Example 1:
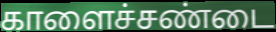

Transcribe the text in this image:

காளைச்சண்டை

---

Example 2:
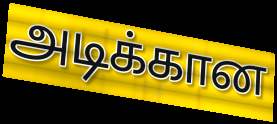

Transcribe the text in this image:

அடிக்கான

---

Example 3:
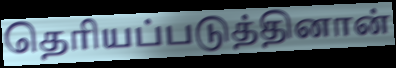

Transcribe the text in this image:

தெரியப்படுத்தினான்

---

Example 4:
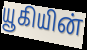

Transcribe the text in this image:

யூகியின்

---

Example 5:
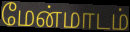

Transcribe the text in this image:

மேன்மாடம்